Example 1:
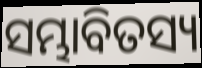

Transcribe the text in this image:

ସମ୍ଭାବିତସ୍ୟ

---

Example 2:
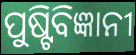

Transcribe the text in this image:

ପୁଷ୍ଟିବିଜ୍ଞାନୀ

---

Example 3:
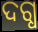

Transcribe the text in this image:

ଦଗ୍ଧ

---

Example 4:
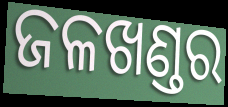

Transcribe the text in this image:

ଜଳଖଣ୍ଡର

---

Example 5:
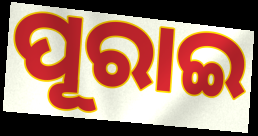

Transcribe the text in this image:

ପୂରାଇ